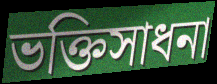
ভক্তিসাধনা